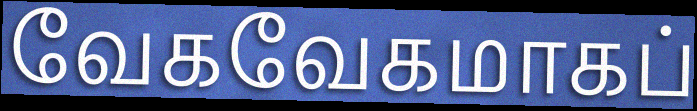
வேகவேகமாகப்